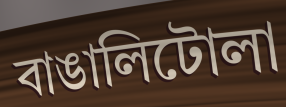
বাঙালিটোলা